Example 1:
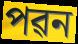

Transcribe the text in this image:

পৱন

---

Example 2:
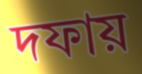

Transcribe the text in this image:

দফায়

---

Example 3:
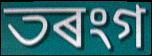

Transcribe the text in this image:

তৰংগ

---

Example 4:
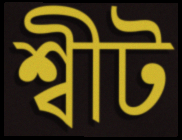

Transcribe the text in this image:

শ্বীট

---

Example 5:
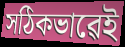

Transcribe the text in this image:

সঠিকভাৱেই